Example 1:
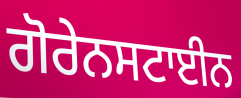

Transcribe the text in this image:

ਗੋਰੇਨਸਟਾਈਨ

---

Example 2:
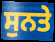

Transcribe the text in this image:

ਸੁਨਤੇ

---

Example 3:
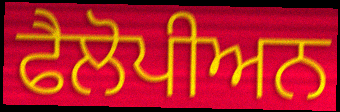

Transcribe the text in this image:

ਫੈਲੋਪੀਅਨ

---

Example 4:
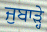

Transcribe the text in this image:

ਜੁਬਾੜ੍ਹੇ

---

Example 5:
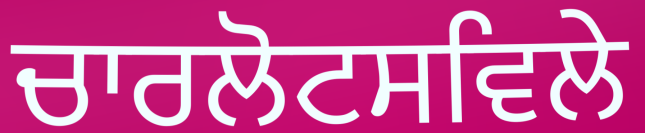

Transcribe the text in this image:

ਚਾਰਲੋਟਸਵਿਲੇ